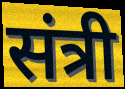
संत्री